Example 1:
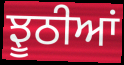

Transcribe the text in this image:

ਝੂਠੀਆਂ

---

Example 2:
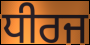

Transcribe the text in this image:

ਧੀਰਜ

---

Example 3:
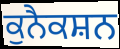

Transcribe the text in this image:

ਕੁਨੈਕਸ਼ਨ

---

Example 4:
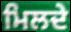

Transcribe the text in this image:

ਮਿਲਦੇ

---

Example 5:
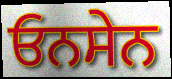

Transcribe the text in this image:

ਓਨਸੇਨ